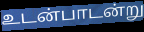
உடன்பாடன்று